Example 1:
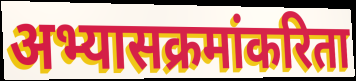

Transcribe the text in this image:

अभ्यासक्रमांकरिता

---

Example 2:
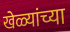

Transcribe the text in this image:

खेळ्यांच्या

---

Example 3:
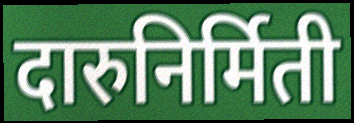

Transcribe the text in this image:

दारुनिर्मिती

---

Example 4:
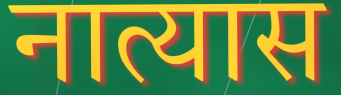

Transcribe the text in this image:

नात्यास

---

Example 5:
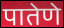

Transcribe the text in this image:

पातेणे